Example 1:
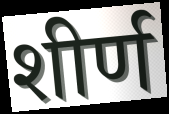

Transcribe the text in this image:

शीर्ण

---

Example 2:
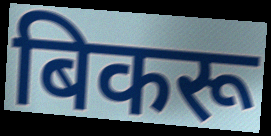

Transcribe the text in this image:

बिकरू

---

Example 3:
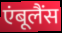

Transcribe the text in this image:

एंबूलैंस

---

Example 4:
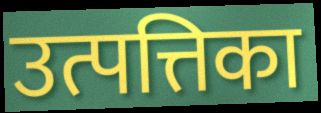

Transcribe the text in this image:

उत्पत्तिका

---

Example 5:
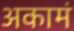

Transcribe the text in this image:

अकामं